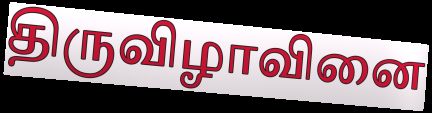
திருவிழாவினை